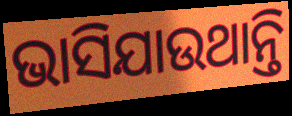
ଭାସିଯାଉଥାନ୍ତି